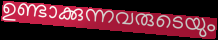
ഉണ്ടാക്കുന്നവരുടെയും